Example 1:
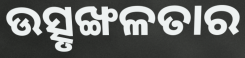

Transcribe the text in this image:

ଉତ୍ସୃଙ୍ଖଳତାର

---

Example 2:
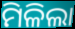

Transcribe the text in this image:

ମିଳିଲା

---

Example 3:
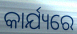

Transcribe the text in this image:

କାର୍ଯ୍ୟରେ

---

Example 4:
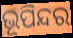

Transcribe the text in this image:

ଭୂପିନ୍ଦର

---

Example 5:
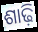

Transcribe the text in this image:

ଶାଢ଼ି